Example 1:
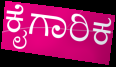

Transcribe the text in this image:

ಕೈಗಾರಿಕ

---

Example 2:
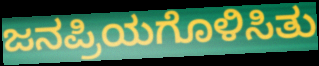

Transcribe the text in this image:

ಜನಪ್ರಿಯಗೊಳಿಸಿತು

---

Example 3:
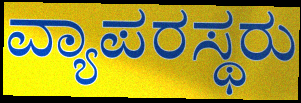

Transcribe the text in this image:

ವ್ಯಾಪರಸ್ಥರು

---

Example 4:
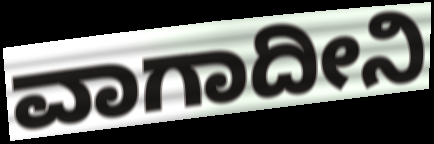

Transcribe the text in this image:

ವಾಗಾದೀನಿ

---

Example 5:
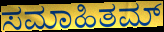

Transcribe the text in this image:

ಸಮಾಹಿತಮ್